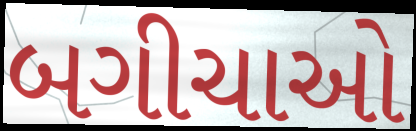
બગીચાઓ